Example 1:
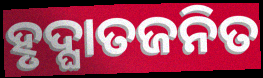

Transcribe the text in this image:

ହୃଦ୍ଘାତଜନିତ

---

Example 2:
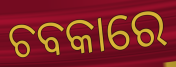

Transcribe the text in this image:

ଚବକାରେ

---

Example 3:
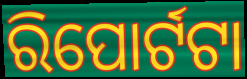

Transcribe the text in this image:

ରିପୋର୍ଟଟା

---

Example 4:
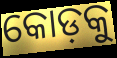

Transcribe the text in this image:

କୋଡ଼କୁ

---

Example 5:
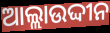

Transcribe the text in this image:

ଆଲ୍ଲାଉଦ୍ଦୀନ